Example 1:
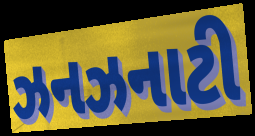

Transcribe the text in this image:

ઝનઝનાટી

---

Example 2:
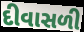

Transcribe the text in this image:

દીવાસળી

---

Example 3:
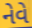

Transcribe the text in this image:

નેવે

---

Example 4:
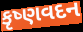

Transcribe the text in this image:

કૃષ્ણવદન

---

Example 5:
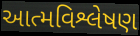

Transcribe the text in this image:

આત્મવિશ્લેષણ